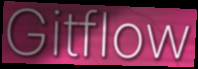
Gitflow